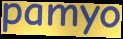
pamyo